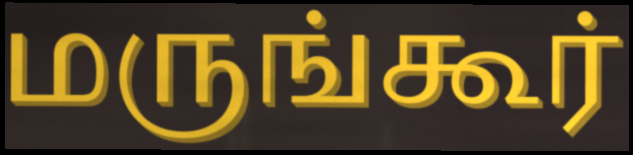
மருங்கூர்